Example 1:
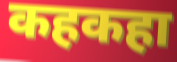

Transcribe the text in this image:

कहकहा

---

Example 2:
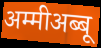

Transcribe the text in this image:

अम्मीअब्बू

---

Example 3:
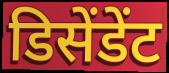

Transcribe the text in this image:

डिसेंडेंट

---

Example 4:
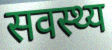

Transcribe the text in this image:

सवस्थ्य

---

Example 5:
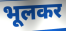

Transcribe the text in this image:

भूलकर